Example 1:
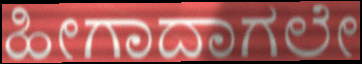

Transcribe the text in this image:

ಹೀಗಾದಾಗಲೇ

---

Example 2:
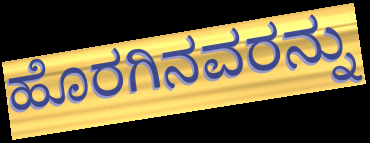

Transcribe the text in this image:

ಹೊರಗಿನವರನ್ನು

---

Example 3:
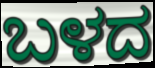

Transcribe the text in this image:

ಬಳದ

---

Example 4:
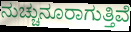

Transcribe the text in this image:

ನುಚ್ಚುನೂರಾಗುತ್ತಿವೆ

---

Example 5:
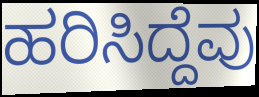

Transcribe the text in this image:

ಹರಿಸಿದ್ದೆವು